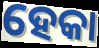
ହେକା